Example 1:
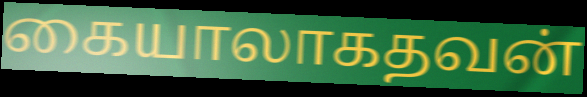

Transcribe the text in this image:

கையாலாகதவன்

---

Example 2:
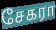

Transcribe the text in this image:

சேகரா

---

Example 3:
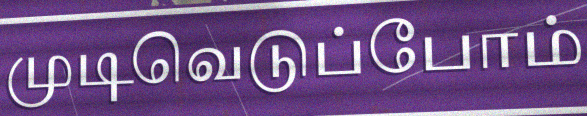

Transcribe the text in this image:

முடிவெடுப்போம்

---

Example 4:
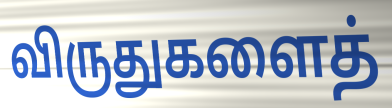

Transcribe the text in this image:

விருதுகளைத்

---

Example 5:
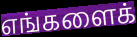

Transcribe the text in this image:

எங்களைக்